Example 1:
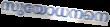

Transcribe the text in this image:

സുയോധനനെ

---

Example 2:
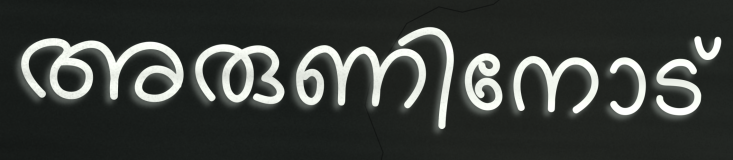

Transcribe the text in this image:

അരുണിനോട്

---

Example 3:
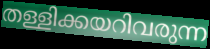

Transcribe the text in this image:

തള്ളിക്കയറിവരുന്ന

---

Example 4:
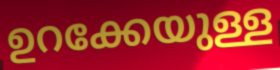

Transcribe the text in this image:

ഉറക്കേയുള്ള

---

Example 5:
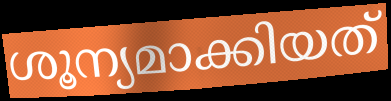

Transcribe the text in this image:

ശൂന്യമാക്കിയത്